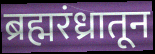
ब्रह्मरंध्रातून